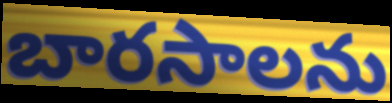
బారసాలను